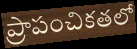
ప్రాపంచికతలో